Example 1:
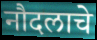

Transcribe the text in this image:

नौदलाचे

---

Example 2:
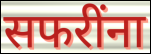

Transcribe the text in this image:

सफरींना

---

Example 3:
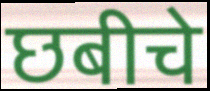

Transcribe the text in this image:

छबीचे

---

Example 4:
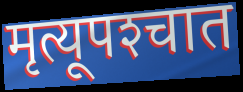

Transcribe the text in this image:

मृत्यूपश्चात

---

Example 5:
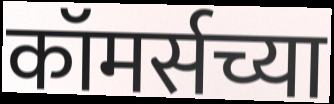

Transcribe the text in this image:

कॉमर्सच्या